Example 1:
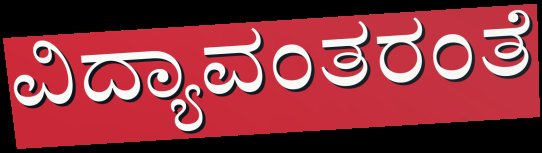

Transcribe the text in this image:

ವಿದ್ಯಾವಂತರಂತೆ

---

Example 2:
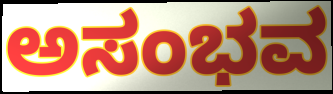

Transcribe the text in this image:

ಅಸಂಭವ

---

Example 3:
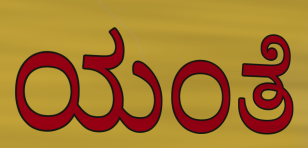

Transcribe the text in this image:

ಯಂತೆ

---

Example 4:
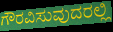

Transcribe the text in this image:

ಗೌರವಿಸುವುದರಲ್ಲಿ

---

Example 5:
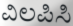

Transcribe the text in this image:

ವಿಲಪಿಸಿ